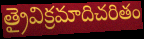
త్రైవిక్రమాదిచరితం